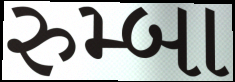
રુમ્બા